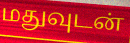
மதுவுடன்